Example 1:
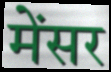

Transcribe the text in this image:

मेंसर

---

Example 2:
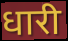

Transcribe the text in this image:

धारी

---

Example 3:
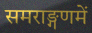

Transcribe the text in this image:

समराङ्गणमें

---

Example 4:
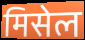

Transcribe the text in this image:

मिसेल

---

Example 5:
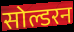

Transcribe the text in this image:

सोल्डरन